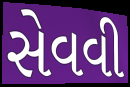
સેવવી